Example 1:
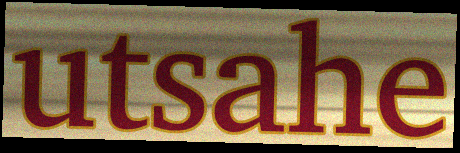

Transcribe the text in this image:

utsahe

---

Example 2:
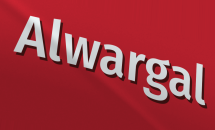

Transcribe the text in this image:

Alwargal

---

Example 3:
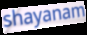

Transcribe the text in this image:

shayanam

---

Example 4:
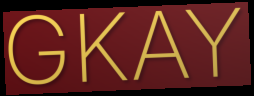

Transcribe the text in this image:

GKAY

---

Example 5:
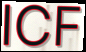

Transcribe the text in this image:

ICF